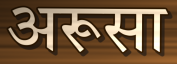
अरूसा